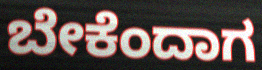
ಬೇಕೆಂದಾಗ